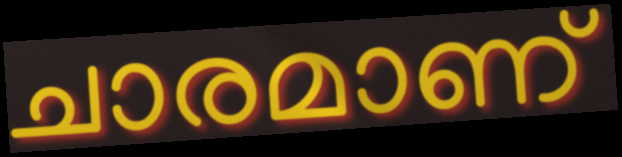
ചാരമാണ്